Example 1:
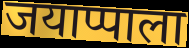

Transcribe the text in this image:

जयाप्पाला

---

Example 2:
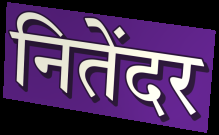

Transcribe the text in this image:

नितेंदर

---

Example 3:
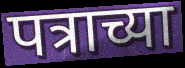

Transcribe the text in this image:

पत्राच्या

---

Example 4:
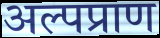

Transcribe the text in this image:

अल्पप्राण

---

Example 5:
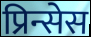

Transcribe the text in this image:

प्रिन्सेस